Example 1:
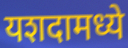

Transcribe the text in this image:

यशदामध्ये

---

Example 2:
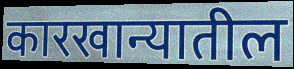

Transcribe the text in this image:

कारखान्यातील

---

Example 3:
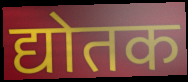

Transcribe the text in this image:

द्योतक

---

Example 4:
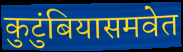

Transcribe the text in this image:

कुटुंबियासमवेत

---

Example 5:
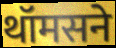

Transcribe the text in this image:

थॉमसने